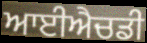
ਆਈਐਚਡੀ